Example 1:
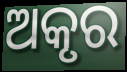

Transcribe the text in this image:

ଅକୃର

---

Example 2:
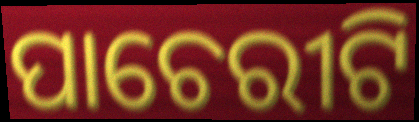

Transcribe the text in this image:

ପାଚେରୀଟି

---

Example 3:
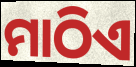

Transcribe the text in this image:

ମାଠିଏ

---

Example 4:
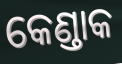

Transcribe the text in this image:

କେଣ୍ଡାକ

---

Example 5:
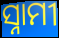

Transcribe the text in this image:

ସ୍ନାମୀ